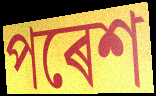
পৰেশ